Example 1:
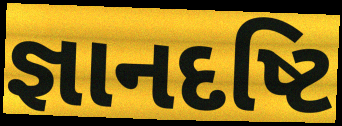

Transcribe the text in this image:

જ્ઞાનદષ્ટિ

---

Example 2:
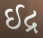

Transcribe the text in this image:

ઈદ્ર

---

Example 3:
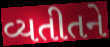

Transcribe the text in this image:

વ્યતીતને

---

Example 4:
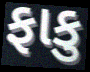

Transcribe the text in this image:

ફાકુ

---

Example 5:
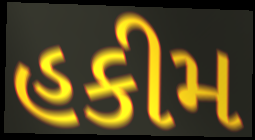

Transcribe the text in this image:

હકીમ